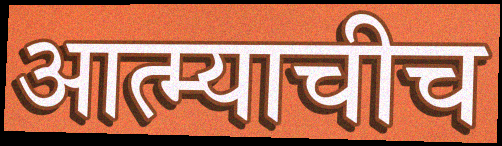
आत्म्याचीच